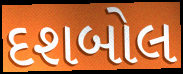
દશબોલ